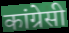
कांग्रेसी